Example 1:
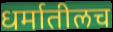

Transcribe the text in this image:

धर्मातीलच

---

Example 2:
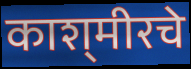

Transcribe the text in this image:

काश्मीरचे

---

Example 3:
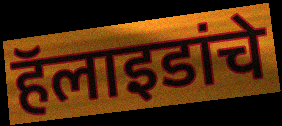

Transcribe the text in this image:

हॅलाइडांचे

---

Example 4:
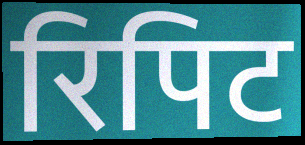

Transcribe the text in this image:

रिपिट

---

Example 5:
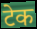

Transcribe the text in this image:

टेक